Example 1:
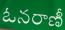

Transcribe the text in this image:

ఓనరాణీ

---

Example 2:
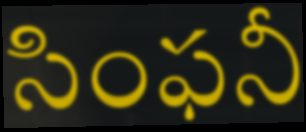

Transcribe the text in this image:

సింఫనీ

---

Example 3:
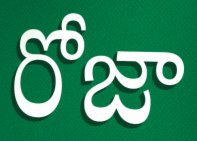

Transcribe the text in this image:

రోజా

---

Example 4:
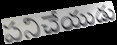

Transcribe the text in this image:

పనిచేయుడు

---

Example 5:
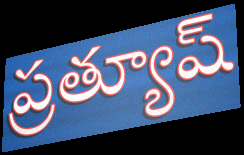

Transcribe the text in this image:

ప్రత్యూష్